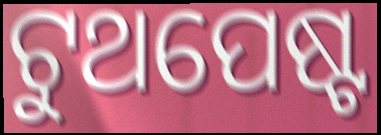
ଟୁଥପେଷ୍ଟ